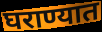
घराण्यात